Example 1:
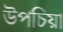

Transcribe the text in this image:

উপচিয়া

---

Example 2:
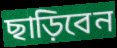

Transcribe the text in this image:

ছাড়িবেন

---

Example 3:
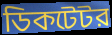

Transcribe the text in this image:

ডিকটেটর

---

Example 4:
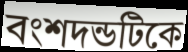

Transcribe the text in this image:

বংশদন্ডটিকে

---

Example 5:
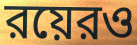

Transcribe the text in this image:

রয়েরও